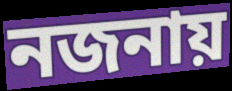
নজনায়